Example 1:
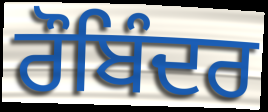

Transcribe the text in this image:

ਰੌਬਿੰਦਰ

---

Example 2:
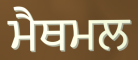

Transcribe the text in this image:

ਮੈਥਮਲ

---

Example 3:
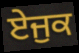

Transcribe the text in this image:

ਏਜੁਕ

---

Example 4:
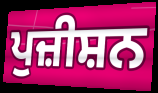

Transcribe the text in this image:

ਪੁਜ਼ੀਸ਼ਨ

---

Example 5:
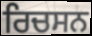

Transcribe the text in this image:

ਰਿਚਸਨ